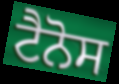
ਟੈਨੋਸ